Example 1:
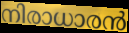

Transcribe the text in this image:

നിരാധാരൻ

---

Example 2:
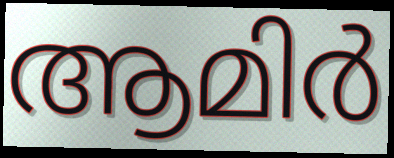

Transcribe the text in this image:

ആമിർ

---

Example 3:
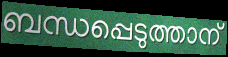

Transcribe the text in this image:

ബന്ധപ്പെടുത്താന്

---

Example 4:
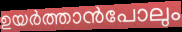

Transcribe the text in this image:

ഉയർത്താൻപോലും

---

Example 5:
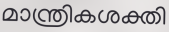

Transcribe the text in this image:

മാന്ത്രികശക്തി